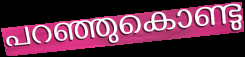
പറഞ്ഞുകൊണ്ടു